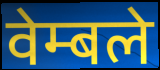
वेम्बले